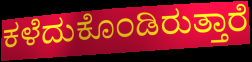
ಕಳೆದುಕೊಂಡಿರುತ್ತಾರೆ